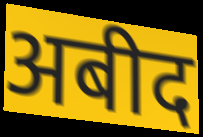
अबीद